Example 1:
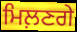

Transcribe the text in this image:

ਮਿਲ਼ਣਗੇ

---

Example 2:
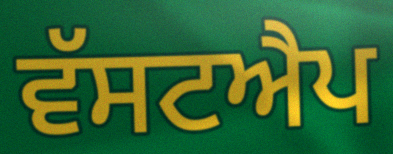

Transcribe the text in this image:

ਵੱਸਟਐਪ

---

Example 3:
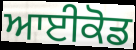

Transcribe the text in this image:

ਆਈਕੋਡ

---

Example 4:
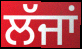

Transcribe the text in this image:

ਲੱਜਾਂ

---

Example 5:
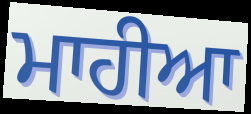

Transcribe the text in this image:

ਮਾਹੀਆ